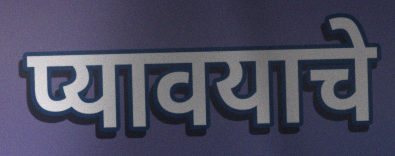
प्यावयाचे